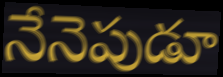
నేనెపుడూ